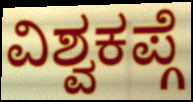
ವಿಶ್ವಕಪ್ಗೆ